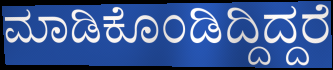
ಮಾಡಿಕೊಂಡಿದ್ದಿದ್ದರೆ